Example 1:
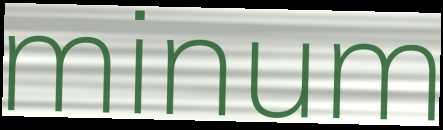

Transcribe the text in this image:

minum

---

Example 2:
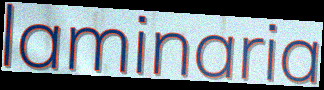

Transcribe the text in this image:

laminaria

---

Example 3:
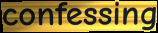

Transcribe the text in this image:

confessing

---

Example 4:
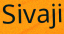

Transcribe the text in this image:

Sivaji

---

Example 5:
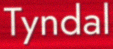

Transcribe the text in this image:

Tyndal